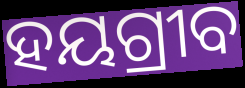
ହୟଗ୍ରୀବ